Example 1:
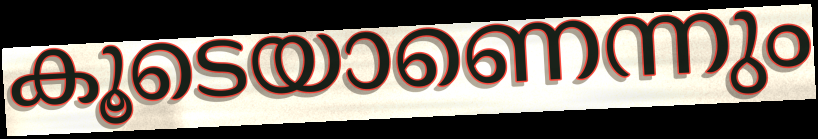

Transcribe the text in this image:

കൂടെയാണെന്നും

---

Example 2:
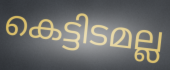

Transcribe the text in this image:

കെട്ടിടമല്ല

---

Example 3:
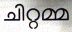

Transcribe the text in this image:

ചിറ്റമ്മ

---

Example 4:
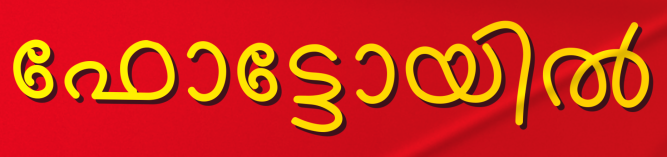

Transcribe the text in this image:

ഫോട്ടോയിൽ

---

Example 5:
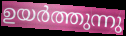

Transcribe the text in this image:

ഉയർത്തുന്നു